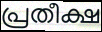
പ്രതീക്ഷ